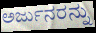
ಅರ್ಜುನರನ್ನು